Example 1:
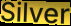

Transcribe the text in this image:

Silver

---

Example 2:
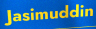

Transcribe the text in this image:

Jasimuddin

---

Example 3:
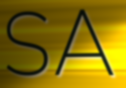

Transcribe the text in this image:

SA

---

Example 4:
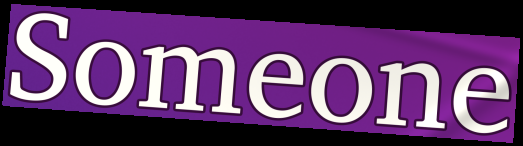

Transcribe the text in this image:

Someone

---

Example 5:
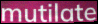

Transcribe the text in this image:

mutilate